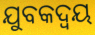
ଯୁବକଦ୍ୱୟ